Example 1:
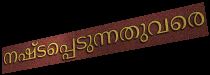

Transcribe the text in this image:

നഷ്ടപ്പെടുന്നതുവരെ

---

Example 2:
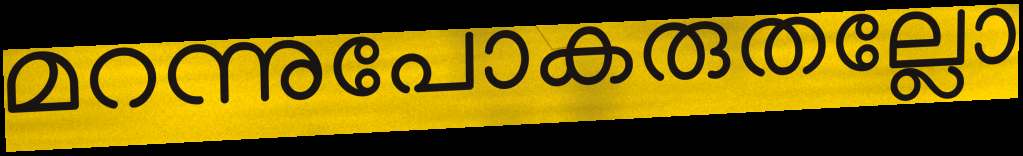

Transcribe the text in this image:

മറന്നുപോകരുതല്ലോ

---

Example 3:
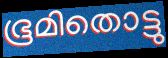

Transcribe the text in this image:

ഭൂമിതൊട്ടു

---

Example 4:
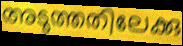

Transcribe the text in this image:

അടുത്തതിലേക്കു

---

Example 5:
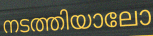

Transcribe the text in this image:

നടത്തിയാലോ